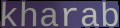
kharab